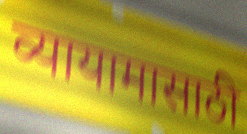
व्यायामासाठी